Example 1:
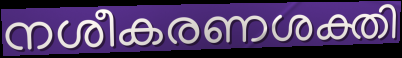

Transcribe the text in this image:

നശീകരണശക്തി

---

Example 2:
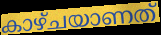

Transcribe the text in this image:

കാഴ്ചയാണത്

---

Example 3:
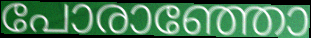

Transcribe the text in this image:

പോരാഞ്ഞോ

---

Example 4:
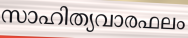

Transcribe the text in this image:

സാഹിത്യവാരഫലം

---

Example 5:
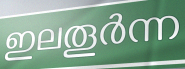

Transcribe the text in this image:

ഇലതൂർന്ന